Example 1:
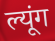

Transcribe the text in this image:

ल्यूंग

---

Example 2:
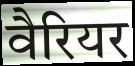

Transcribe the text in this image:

वैरियर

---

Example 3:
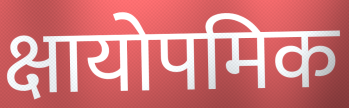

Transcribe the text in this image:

क्षायोपमिक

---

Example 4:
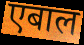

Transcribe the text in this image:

एबाल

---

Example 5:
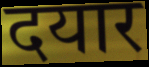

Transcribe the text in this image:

दयार